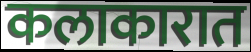
कलाकारात